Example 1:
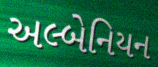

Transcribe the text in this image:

અલ્બેનિયન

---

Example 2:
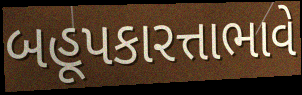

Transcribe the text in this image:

બહૂપકારત્તાભાવે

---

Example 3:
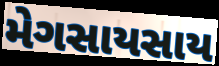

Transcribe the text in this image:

મેગસાયસાય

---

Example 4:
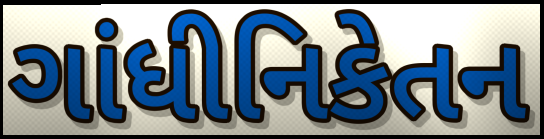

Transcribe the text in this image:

ગાંધીનિકેતન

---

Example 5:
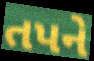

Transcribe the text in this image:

તપને